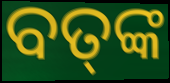
ବତ୍‍ଙ୍କ